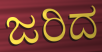
ಜರಿದ